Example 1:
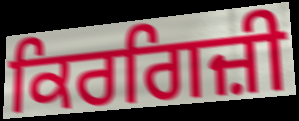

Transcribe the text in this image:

ਕਿਰਗਿਜ਼ੀ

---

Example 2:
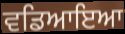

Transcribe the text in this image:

ਵਡਿਆਇਆ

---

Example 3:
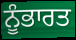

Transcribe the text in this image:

ਨੂੰਭਾਰਤ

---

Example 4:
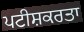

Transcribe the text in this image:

ਪਟੀਸ਼ਕਰਤਾ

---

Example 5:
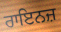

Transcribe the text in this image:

ਰਾਇਨਜ਼